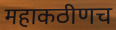
महाकठीणच